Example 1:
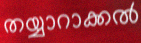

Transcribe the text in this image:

തയ്യാറാക്കൽ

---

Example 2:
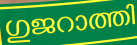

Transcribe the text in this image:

ഗുജറാത്തി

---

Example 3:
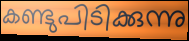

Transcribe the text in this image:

കണ്ടുപിടിക്കുന്നു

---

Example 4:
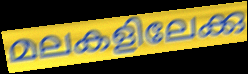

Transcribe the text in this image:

മലകളിലേക്കു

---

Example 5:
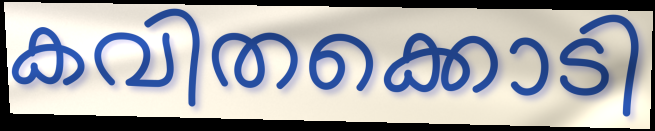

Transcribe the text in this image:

കവിതക്കൊടി